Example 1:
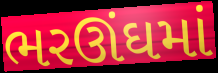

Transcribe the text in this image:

ભરઊંઘમાં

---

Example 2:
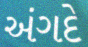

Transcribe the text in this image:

અંગદે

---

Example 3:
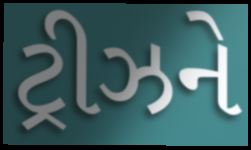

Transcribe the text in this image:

ટ્રીઝને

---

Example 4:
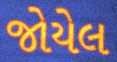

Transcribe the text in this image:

જોયેલ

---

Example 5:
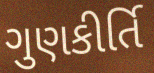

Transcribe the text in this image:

ગુણકીર્તિ